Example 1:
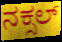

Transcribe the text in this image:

ನಕ್ಸಲ್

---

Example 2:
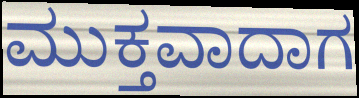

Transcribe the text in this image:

ಮುಕ್ತವಾದಾಗ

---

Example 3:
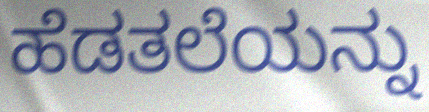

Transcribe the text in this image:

ಹೆಡತಲೆಯನ್ನು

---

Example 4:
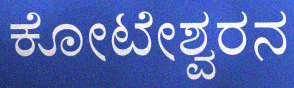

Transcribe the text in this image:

ಕೋಟೇಶ್ವರನ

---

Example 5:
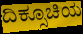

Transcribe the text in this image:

ದಿಕ್ಸೂಚಿಯ